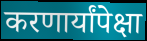
करणार्यांपेक्षा